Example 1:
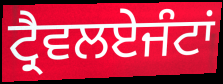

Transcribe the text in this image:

ਟ੍ਰੈਵਲਏਜੰਟਾਂ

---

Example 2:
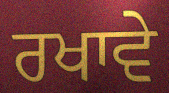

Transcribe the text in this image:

ਰਖਾਵੇ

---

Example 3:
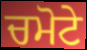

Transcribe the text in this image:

ਚਮੋਟੇ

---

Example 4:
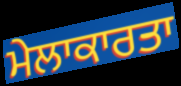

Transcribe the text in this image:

ਮੇਲਾਕਾਰਤਾ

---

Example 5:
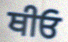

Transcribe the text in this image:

ਥੀਓ